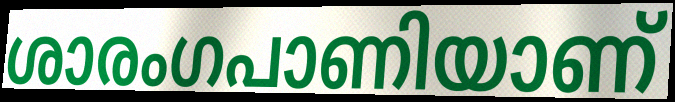
ശാരംഗപാണിയാണ്